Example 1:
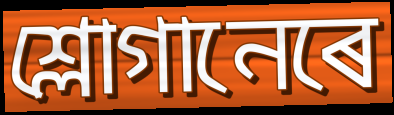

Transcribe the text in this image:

শ্লোগানেৰে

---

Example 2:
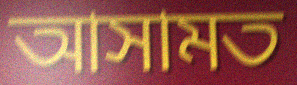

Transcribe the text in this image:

আসামত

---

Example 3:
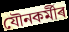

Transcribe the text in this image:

যৌনকৰ্মীৰ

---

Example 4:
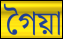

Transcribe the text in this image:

গৈয়া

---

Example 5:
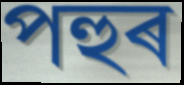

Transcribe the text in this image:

পহুৰ